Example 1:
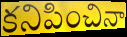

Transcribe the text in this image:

కనిపించినా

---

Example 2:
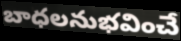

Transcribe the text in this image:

బాధలనుభవించే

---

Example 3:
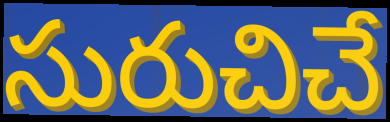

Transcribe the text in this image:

సురుచిచే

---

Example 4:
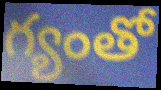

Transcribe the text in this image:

గ్యంతో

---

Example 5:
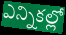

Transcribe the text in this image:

ఎన్నికల్లో